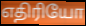
எதிரியோ